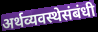
अर्थव्यवस्थेसंबंधी